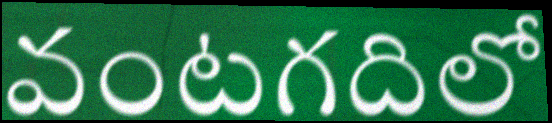
వంటగదిలో